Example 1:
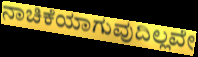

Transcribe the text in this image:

ನಾಚಿಕೆಯಾಗುವುದಿಲ್ಲವೇ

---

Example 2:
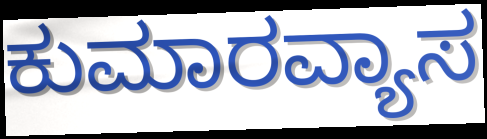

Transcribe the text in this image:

ಕುಮಾರವ್ಯಾಸ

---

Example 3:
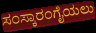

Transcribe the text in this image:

ಸಂಸ್ಕಾರಂಗೈಯಲು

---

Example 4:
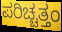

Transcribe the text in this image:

ಪರಿಚ್ಚತ್ತಂ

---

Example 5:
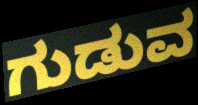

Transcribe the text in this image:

ಗುಡುವ